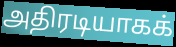
அதிரடியாகக்